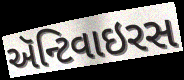
ઍન્ટિવાઇરસ